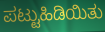
ಪಟ್ಟುಹಿಡಿಯಿತು